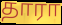
தாரா